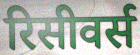
रिसीवर्स